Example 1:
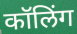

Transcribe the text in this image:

कॉलिंग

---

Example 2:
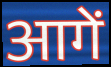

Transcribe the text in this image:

आगें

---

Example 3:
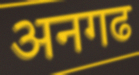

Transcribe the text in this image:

अनगढ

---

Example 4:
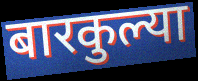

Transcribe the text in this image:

बारकुल्या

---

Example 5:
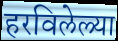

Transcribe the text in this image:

हरविलेल्या